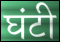
घंटी